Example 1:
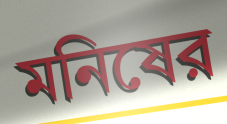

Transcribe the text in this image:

মনিষের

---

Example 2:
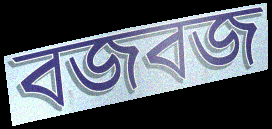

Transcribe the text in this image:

বজবজ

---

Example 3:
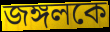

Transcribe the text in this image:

জঙ্গলকে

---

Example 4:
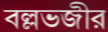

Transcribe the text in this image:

বল্লভজীর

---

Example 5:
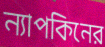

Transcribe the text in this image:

ন্যাপকিনের